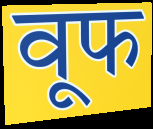
वूफ